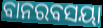
ବାନରବସୟା